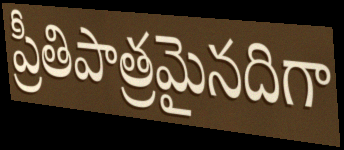
ప్రీతిపాత్రమైనదిగా